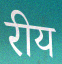
रीय